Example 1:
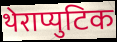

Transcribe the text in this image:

थेराप्युटिक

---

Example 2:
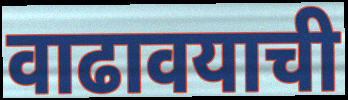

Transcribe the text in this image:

वाढावयाची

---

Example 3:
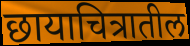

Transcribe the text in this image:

छायाचित्रातील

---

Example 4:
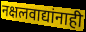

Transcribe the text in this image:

नक्षलवाद्यांनाही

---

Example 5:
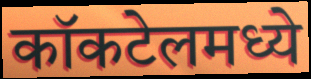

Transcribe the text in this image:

कॉकटेलमध्ये